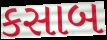
કસાબ